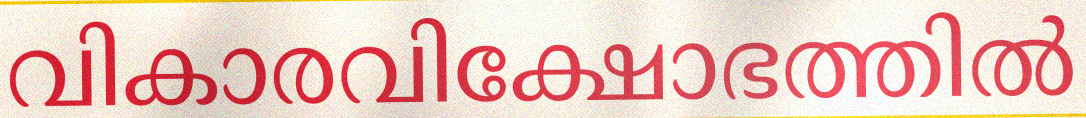
വികാരവിക്ഷോഭത്തിൽ